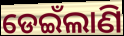
ଡେଇଁଲାଣି